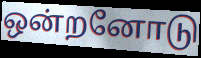
ஒன்றனோடு